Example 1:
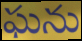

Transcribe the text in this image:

ఘను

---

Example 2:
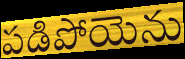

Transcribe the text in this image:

పడిపోయెను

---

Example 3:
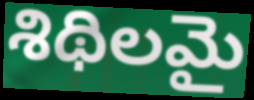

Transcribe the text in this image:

శిథిలమై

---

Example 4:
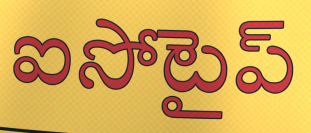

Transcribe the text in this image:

ఐసోటైప్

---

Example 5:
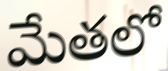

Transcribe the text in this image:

మేతలో